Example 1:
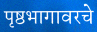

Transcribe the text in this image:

पृष्ठभागावरचे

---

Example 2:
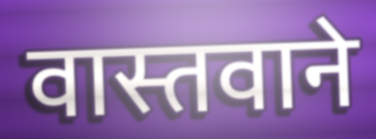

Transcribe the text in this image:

वास्तवाने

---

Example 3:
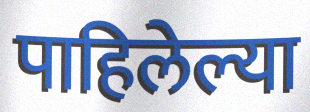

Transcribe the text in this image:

पाहिलेल्या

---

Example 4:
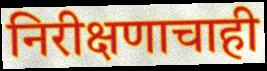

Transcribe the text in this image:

निरीक्षणाचाही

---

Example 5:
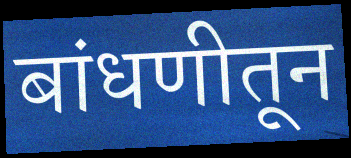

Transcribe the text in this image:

बांधणीतून